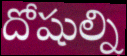
దోషుల్ని